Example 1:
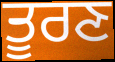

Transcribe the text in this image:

ਤੂਰਣ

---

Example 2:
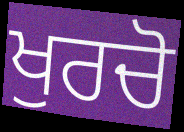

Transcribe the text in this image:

ਖੁਰਚੋ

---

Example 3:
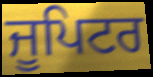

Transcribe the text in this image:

ਜੂਪਿਟਰ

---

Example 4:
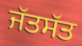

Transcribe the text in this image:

ਜੱਤਸੱਤ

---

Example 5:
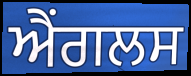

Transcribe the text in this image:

ਐਂਗਲਸ